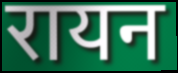
रायन